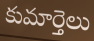
కుమార్తెలు